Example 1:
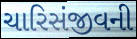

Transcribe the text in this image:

ચારિસંજીવની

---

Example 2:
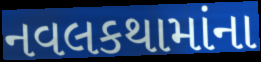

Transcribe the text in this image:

નવલકથામાંના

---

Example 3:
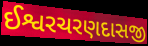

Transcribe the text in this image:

ઈશ્વરચરણદાસજી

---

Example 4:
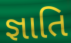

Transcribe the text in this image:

જ્ઞાતિ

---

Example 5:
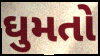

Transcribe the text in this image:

ઘુમતો